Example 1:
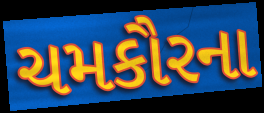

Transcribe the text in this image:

ચમકૌરના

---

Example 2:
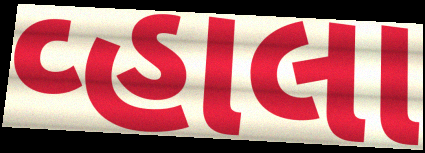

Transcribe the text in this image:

વ્હાલા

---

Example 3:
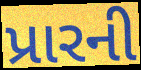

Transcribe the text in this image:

પ્રારની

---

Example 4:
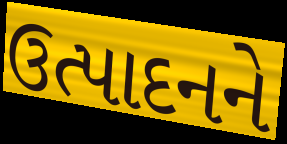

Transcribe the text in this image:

ઉત્પાદનને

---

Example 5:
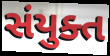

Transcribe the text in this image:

સંયુક્ત